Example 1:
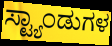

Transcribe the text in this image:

ಸ್ಟ್ಯಾಂಡುಗಳ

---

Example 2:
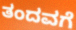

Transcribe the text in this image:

ತಂದವಗೆ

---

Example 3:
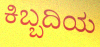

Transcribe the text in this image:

ಕಿಬ್ಬದಿಯ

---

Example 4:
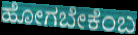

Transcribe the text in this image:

ಹೋಗಬೇಕೆಂಬ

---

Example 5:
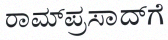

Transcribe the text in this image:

ರಾಮ್‌ಪ್ರಸಾದ್‌ಗೆ